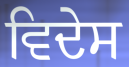
ਵਿਦੇਸ